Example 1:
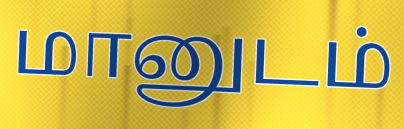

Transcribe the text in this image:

மானுடம்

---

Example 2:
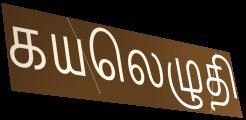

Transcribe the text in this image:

கயலெழுதி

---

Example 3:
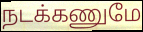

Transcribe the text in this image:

நடக்கணுமே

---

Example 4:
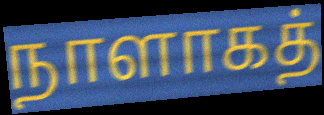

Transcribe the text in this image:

நாளாகத்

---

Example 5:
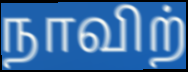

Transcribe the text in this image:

நாவிற்